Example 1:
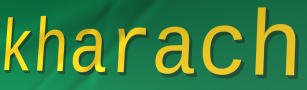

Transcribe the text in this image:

kharach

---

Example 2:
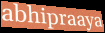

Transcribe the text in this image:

abhipraaya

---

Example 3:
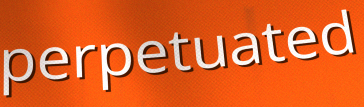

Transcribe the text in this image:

perpetuated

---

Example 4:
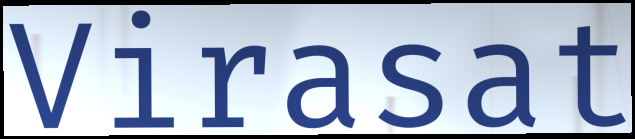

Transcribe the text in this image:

Virasat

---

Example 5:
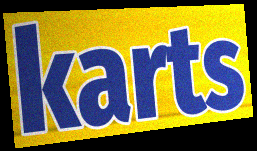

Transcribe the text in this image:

karts